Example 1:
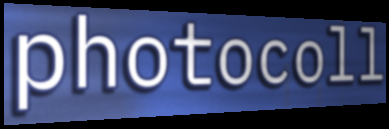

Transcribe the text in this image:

photocoll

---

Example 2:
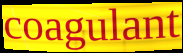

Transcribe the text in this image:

coagulant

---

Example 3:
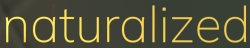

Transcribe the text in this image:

naturalized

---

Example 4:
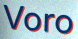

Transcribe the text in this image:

Voro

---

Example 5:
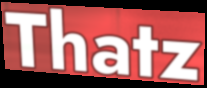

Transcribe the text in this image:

Thatz